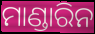
ମାଣ୍ଡାରିନ